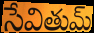
సేవితుమ్